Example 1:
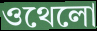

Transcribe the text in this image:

ওথেলো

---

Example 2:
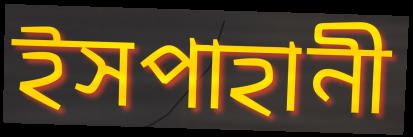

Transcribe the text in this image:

ইসপাহানী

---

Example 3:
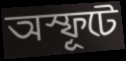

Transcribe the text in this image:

অস্ফূটে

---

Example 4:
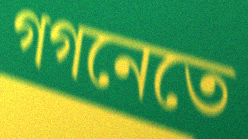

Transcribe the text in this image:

গগনেতে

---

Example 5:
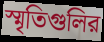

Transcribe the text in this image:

স্মৃতিগুলির